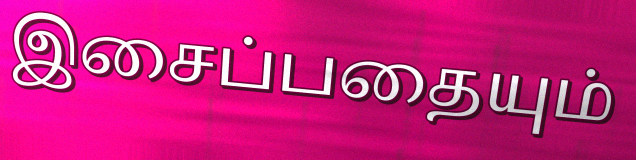
இசைப்பதையும்